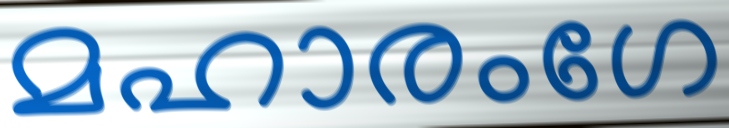
മഹാരംഗേ